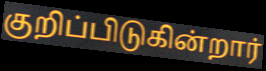
குறிப்பிடுகின்றார்